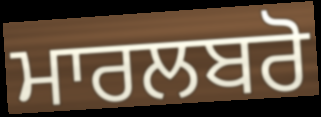
ਮਾਰਲਬਰੋ